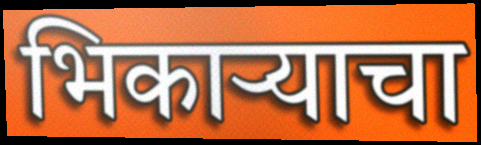
भिकाऱ्याचा